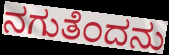
ನಗುತೆಂದನು